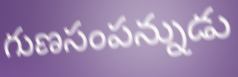
గుణసంపన్నుడు